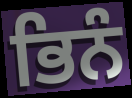
ਭਿਨੰ